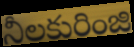
నీలకురింజి